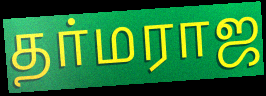
தர்மராஜ